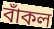
বাঁকল